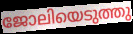
ജോലിയെടുത്തു